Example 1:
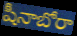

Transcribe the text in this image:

షీనాబోరా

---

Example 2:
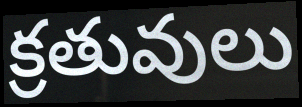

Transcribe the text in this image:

క్రతువులు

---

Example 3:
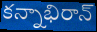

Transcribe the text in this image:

కన్నాభిరాన్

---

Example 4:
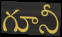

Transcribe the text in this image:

గూనీ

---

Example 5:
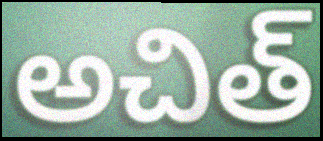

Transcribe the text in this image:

అచిత్